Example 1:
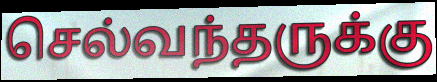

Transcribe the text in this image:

செல்வந்தருக்கு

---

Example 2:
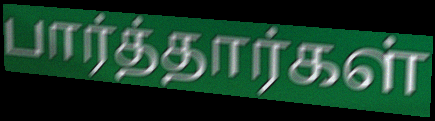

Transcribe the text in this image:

பார்த்தார்கள்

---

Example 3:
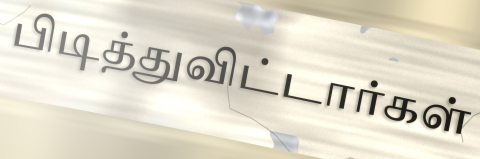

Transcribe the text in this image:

பிடித்துவிட்டார்கள்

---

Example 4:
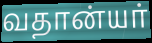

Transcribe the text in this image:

வதான்யர்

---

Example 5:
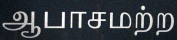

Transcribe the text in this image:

ஆபாசமற்ற